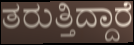
ತರುತ್ತಿದ್ದಾರೆ